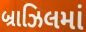
બ્રાઝિલમાં